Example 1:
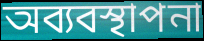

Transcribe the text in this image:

অব্যবস্থাপনা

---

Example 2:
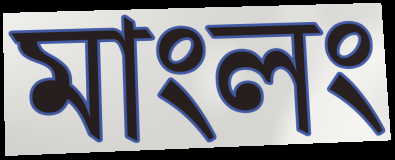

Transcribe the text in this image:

মাংলং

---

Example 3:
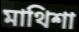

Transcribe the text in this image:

মাথিশা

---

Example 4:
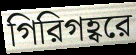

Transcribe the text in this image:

গিরিগহ্বরে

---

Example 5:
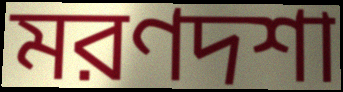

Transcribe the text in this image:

মরণদশা